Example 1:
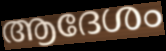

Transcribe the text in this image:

ആദേശം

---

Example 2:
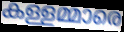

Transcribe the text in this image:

കള്ളമ്മാരെ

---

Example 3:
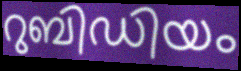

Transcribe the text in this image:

റുബിഡിയം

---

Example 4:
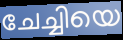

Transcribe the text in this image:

ചേച്ചിയെ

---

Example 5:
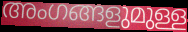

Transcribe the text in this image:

അംഗങ്ങളുമുള്ള